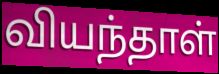
வியந்தாள்